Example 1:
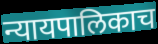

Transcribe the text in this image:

न्यायपालिकाच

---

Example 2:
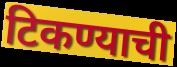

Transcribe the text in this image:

टिकण्याची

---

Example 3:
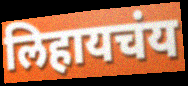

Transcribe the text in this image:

लिहायचंय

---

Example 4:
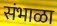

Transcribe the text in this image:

संभाळा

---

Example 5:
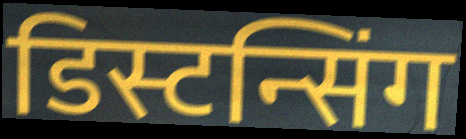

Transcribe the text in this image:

डिस्टन्सिंग